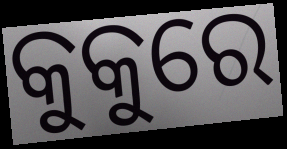
କୁକୁରେ